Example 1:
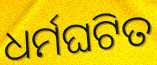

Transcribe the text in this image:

ଧର୍ମଘଟିତ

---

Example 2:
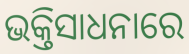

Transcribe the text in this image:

ଭକ୍ତିସାଧନାରେ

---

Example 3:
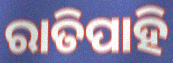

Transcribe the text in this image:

ରାତିପାହି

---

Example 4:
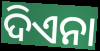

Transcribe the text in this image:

ଦିଏନା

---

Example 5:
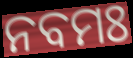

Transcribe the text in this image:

ନବମଃ